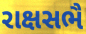
રાક્ષસભૈ